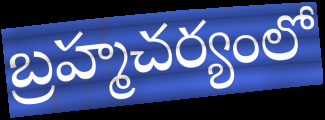
బ్రహ్మచర్యంలో